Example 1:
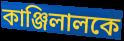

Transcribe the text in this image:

কাঞ্জিলালকে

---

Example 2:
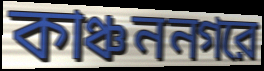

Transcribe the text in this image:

কাঞ্চননগরে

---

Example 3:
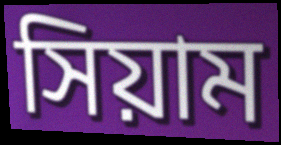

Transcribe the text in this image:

সিয়াম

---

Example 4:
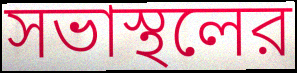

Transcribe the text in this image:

সভাস্থলের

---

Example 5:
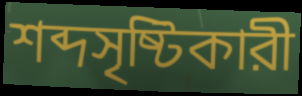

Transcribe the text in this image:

শব্দসৃষ্টিকারী